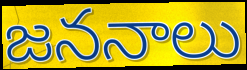
జననాలు